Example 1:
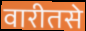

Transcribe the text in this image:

वारीतसे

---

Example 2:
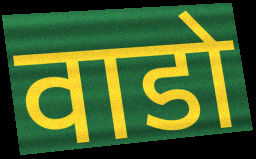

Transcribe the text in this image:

वाडो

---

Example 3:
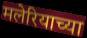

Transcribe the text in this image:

मलेरियाच्या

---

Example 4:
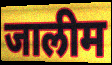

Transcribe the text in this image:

जालीम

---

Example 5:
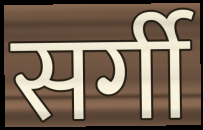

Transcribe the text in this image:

सर्गी